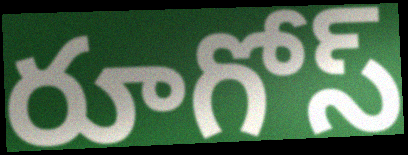
రూగోస్